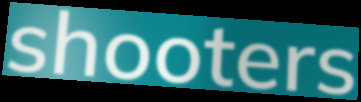
shooters